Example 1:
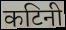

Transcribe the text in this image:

कटिनी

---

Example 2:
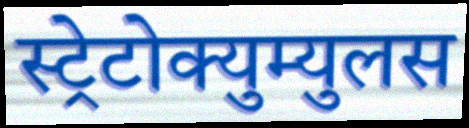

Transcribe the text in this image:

स्ट्रेटोक्युम्युलस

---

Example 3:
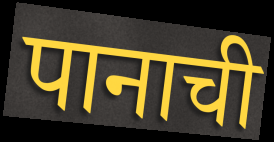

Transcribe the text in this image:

पानाची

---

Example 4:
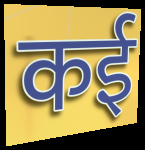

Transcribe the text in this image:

कई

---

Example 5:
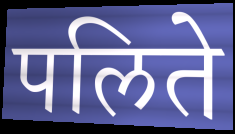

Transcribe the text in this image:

पलिते